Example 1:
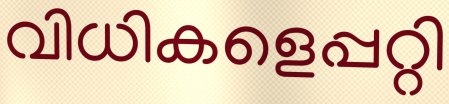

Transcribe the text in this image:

വിധികളെപ്പറ്റി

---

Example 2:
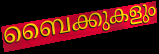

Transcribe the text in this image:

ബൈക്കുകളും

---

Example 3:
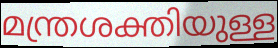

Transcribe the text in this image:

മന്ത്രശക്തിയുള്ള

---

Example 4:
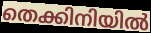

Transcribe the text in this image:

തെക്കിനിയിൽ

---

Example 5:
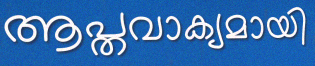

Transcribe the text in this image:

ആപ്തവാക്യമായി